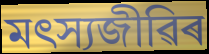
মৎস্যজীৱিৰ